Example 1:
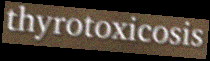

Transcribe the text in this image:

thyrotoxicosis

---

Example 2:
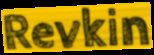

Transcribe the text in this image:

Revkin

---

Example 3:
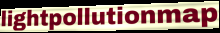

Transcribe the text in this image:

lightpollutionmap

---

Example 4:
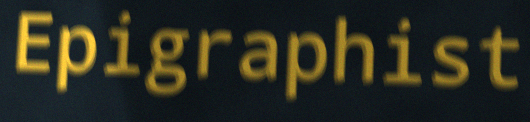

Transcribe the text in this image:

Epigraphist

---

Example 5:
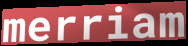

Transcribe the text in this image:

merriam